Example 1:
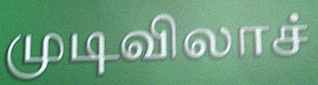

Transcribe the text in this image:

முடிவிலாச்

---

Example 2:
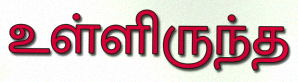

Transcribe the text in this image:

உள்ளிருந்த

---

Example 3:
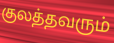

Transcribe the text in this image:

குலத்தவரும்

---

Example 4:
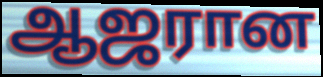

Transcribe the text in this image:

ஆஜரான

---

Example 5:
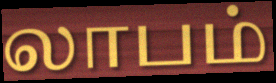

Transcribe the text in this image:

லாபம்